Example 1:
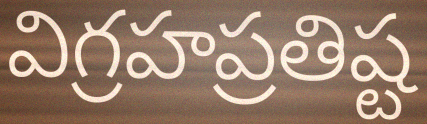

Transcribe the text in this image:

విగ్రహప్రతిష్ట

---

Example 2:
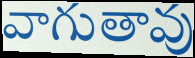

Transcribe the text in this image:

వాగుతావు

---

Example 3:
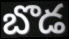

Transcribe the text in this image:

బొడ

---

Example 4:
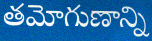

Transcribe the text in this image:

తమోగుణాన్ని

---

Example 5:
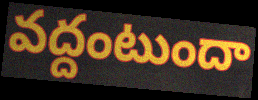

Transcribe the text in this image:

వద్దంటుందా